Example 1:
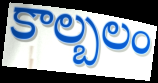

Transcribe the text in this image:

కాల్బలం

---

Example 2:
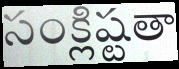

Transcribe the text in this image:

సంక్లిష్టతా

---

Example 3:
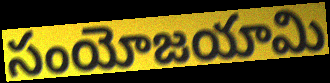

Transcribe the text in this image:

సంయోజయామి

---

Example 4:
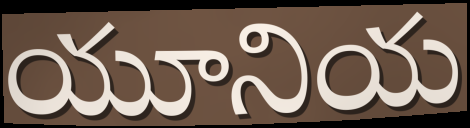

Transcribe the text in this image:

యూనియ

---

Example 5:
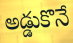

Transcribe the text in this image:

అడ్డుకొనే